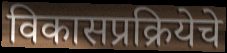
विकासप्रक्रियेचे